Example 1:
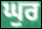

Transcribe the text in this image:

ਘੁਰ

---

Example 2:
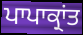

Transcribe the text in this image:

ਪਾਪਾਕ੍ਰਾਂਤ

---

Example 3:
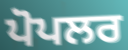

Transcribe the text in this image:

ਪੋਪਲਰ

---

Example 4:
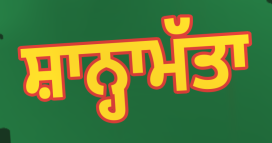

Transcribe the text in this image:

ਸ਼ਾਨ੍ਹਾਮੱਤਾ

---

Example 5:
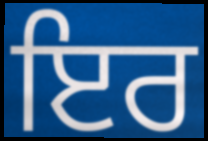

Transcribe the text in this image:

ਇਰ